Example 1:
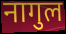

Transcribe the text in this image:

नागुल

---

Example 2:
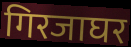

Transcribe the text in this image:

गिरजाघर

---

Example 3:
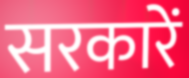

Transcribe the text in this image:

सरकारें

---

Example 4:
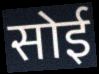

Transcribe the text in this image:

सोई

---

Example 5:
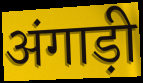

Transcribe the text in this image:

अंगाड़ी